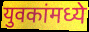
युवकांमध्ये